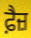
ਫ਼ੈਜ਼